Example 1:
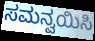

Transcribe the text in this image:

ಸಮನ್ವಯಿಸಿ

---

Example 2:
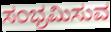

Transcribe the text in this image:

ಸಂಭ್ರಮಿಸುವ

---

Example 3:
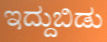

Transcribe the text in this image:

ಇದ್ದುಬಿಡು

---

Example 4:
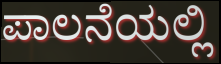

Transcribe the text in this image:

ಪಾಲನೆಯಲ್ಲಿ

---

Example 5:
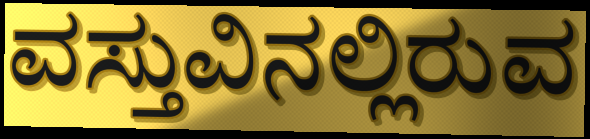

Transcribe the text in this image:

ವಸ್ತುವಿನಲ್ಲಿರುವ